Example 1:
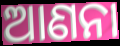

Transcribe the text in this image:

ଆଣନା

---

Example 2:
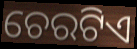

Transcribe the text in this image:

ଚେରଟିଏ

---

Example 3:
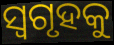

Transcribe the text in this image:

ସ୍ୱଗୃହକୁ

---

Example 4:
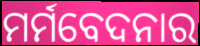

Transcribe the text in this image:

ମର୍ମବେଦନାର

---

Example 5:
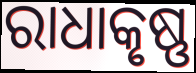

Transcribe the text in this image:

ରାଧାକୃଷ୍ଣ